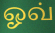
ஓவ்